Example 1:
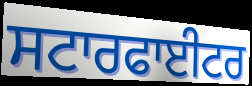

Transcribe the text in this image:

ਸਟਾਰਫਾਈਟਰ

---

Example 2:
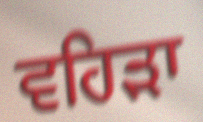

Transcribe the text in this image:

ਵਹਿੜਾ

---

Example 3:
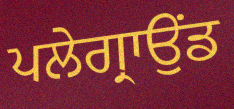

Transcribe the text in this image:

ਪਲੇਗ੍ਰਾਉਂਡ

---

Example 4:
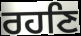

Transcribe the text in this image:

ਰਹਣਿ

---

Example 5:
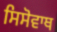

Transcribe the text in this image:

ਸਿਸੋਵਾਥ